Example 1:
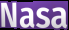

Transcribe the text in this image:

Nasa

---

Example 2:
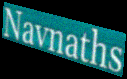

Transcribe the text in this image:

Navnaths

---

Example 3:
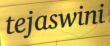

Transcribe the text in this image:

tejaswini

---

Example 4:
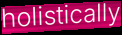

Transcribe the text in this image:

holistically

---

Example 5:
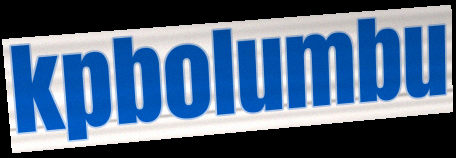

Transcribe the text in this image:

kpbolumbu